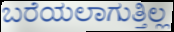
ಬರೆಯಲಾಗುತ್ತಿಲ್ಲ